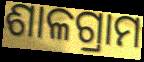
ଶାଳଗ୍ରାମ